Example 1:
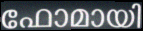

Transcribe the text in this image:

ഫോമായി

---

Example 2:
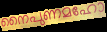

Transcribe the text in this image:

നൈപുണമഹോ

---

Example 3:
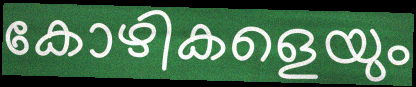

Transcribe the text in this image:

കോഴികളെയും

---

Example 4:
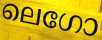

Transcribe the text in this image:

ലെഗോ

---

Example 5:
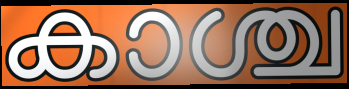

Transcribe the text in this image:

കാശ്ച